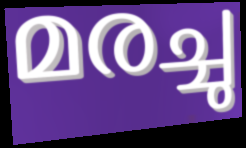
മരച്ചു